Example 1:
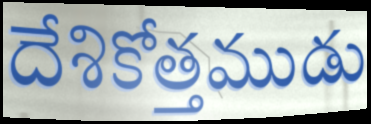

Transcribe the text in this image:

దేశికోత్తముడు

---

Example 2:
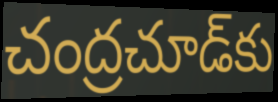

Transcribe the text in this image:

చంద్రచూడ్‌కు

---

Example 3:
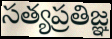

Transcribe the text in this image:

సత్యప్రతిజ్ఞ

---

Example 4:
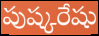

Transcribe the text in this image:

పుష్కరేషు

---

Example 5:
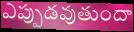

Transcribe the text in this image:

ఎప్పుడవుతుందా